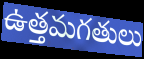
ఉత్తమగతులు